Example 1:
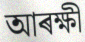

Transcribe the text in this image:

আৰক্ষী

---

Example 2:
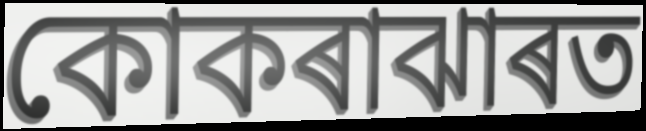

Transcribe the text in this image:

কোকৰাঝাৰত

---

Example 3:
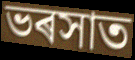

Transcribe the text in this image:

ভৰসাত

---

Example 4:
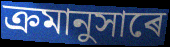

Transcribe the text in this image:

ক্ৰমানুসাৰে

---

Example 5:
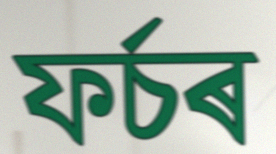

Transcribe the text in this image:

ফৰ্চৰ